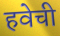
हवेची